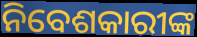
ନିବେଶକାରୀଙ୍କ